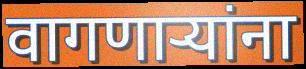
वागणार्‍यांना